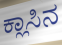
ಕ್ಲಾಸಿನ